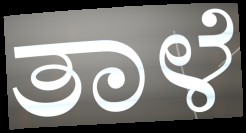
ತಾಳೆ